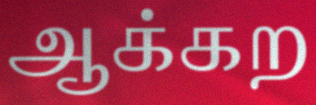
ஆக்கற